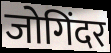
जोगिंदर